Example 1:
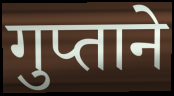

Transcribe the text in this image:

गुप्ताने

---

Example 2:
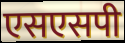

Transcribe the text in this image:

एसएसपी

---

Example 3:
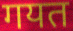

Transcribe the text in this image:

गयत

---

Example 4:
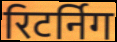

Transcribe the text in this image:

रिटर्निग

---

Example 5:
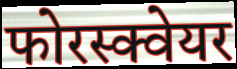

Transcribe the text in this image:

फोरस्क्वेयर